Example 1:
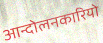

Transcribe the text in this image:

आन्दोलनकारियो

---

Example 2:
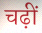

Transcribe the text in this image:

चढ़ीं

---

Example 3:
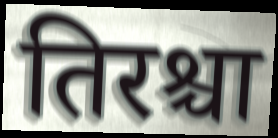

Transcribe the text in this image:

तिरश्चा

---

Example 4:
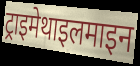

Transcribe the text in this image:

ट्राइमेथाइलमाइन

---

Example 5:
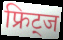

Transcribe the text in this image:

फ्रिट्ज